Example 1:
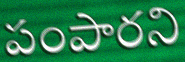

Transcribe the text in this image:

పంపారని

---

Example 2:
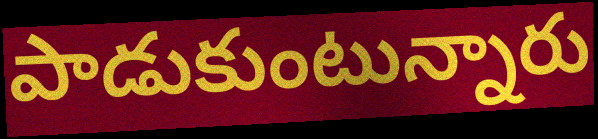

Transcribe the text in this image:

పాడుకుంటున్నారు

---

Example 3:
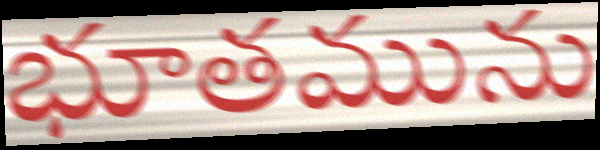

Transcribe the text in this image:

భూతమును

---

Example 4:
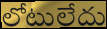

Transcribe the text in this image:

లోటులేదు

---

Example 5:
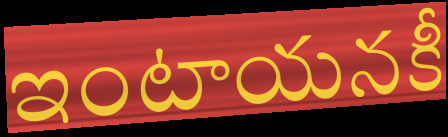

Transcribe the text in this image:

ఇంటాయనకీ